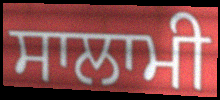
ਸਾਲਾਮੀ